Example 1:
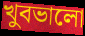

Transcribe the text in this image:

খুবভালো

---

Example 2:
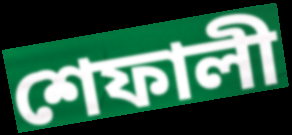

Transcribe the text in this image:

শেফালী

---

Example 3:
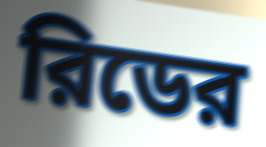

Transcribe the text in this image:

রিডের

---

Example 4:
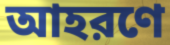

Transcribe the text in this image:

আহরণে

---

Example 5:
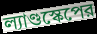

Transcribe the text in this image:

ল্যাণ্ডস্কেপের